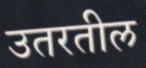
उतरतील